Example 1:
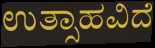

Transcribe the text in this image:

ಉತ್ಸಾಹವಿದೆ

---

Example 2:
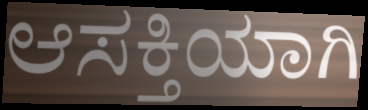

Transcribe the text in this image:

ಆಸಕ್ತಿಯಾಗಿ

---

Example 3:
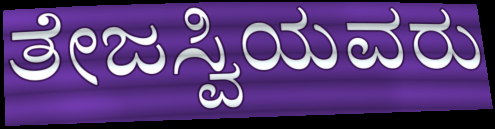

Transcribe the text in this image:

ತೇಜಸ್ವಿಯವರು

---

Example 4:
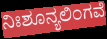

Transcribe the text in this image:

ನಿಃಶೂನ್ಯಲಿಂಗವೆ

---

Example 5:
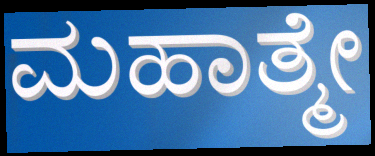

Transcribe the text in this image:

ಮಹಾತ್ಮೇ